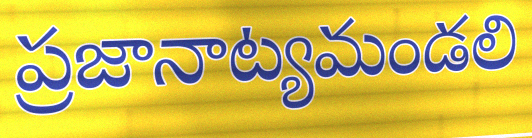
ప్రజానాట్యమండలి